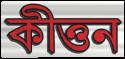
কীত্তন